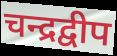
चन्द्रद्वीप